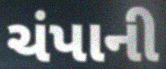
ચંપાની